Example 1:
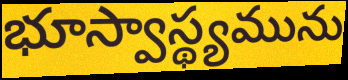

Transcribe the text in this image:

భూస్వాస్థ్యమును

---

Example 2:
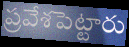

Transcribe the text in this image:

ప్రవేశపెట్టారు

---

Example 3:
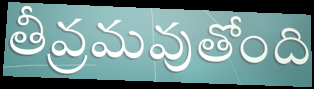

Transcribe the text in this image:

తీవ్రమవుతోంది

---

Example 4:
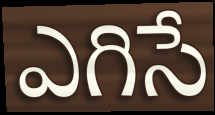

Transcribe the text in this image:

ఎగిసే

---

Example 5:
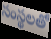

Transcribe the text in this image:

సంస్థలతో